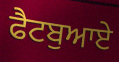
ਫੈਟਬੁਆਏ